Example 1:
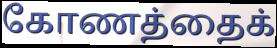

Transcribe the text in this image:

கோணத்தைக்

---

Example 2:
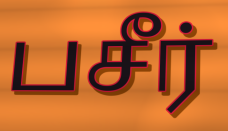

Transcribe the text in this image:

பசீர்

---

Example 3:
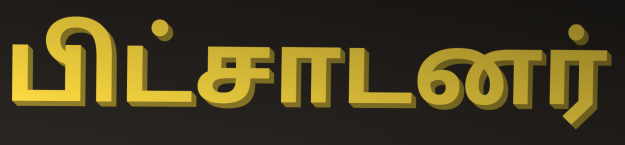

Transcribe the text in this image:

பிட்சாடனர்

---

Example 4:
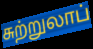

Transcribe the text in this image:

சுற்றுலாப்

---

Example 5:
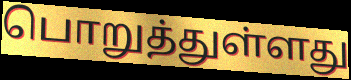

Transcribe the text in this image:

பொறுத்துள்ளது